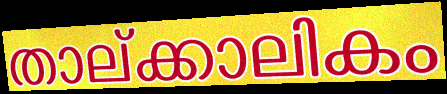
താല്ക്കാലികം